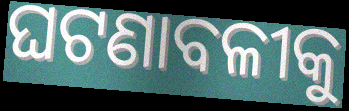
ଘଟଣାବଳୀକୁ